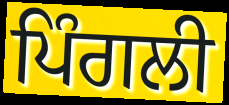
ਪਿੰਗਲੀ